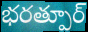
భరత్పూర్